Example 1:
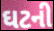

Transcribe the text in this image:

ઘટની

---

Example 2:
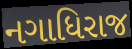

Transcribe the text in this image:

નગાધિરાજ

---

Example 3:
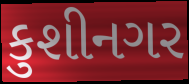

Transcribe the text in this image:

કુશીનગર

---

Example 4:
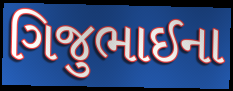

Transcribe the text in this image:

ગિજુભાઈના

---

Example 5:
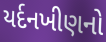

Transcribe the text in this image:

યર્દનખીણનો